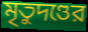
মৃতুদণ্ডের